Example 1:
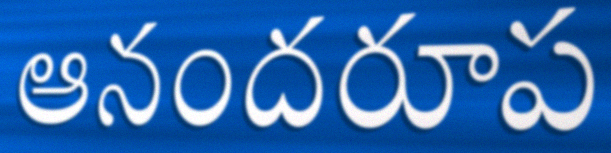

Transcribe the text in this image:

ఆనందరూప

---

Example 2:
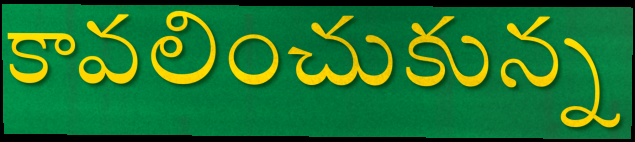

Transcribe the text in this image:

కావలించుకున్న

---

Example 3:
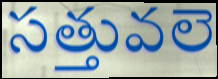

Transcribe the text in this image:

సత్తువలె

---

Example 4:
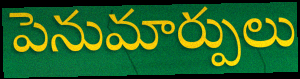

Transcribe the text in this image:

పెనుమార్పులు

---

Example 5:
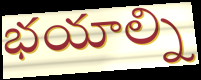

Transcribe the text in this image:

భయాల్ని